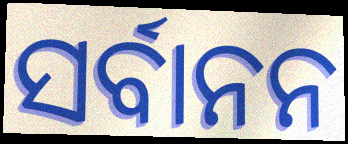
ସର୍ବାନନ